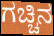
ಗಚ್ಚಿನ